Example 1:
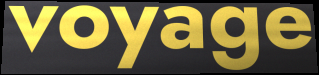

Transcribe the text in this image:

voyage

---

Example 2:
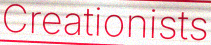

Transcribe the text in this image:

Creationists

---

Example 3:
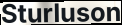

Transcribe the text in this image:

Sturluson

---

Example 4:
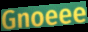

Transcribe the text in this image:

Gnoeee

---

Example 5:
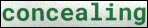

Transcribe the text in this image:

concealing